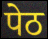
पेठ